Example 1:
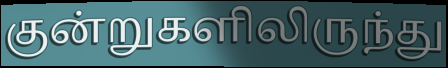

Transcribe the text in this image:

குன்றுகளிலிருந்து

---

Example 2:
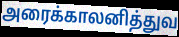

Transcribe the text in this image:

அரைக்காலனித்துவ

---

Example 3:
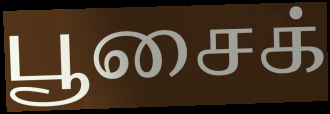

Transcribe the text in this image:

பூசைக்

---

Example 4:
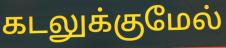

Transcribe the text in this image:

கடலுக்குமேல்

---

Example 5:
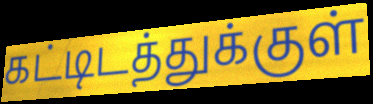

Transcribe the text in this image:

கட்டிடத்துக்குள்